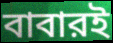
বাবারই